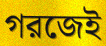
গরজেই